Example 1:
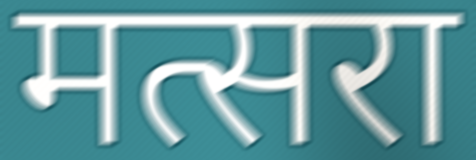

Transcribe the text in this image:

मत्सरा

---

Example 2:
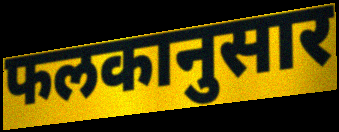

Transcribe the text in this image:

फलकानुसार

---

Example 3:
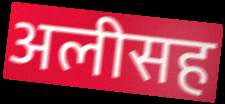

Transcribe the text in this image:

अलीसह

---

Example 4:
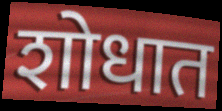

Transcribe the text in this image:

शोधात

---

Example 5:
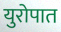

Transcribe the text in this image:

युरोपात